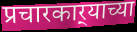
प्रचारकार्याच्या